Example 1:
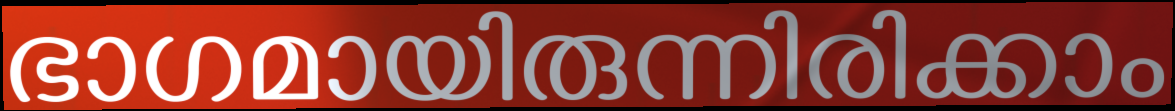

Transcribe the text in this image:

ഭാഗമായിരുന്നിരിക്കാം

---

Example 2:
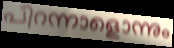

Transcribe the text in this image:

പിറന്നാളൊന്നും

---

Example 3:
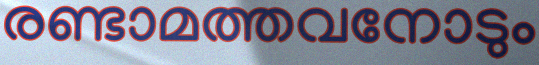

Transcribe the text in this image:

രണ്ടാമത്തവനോടും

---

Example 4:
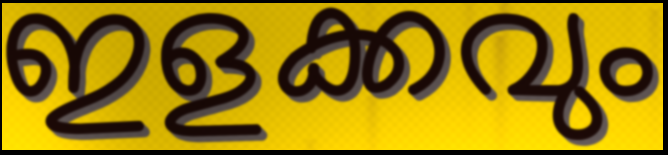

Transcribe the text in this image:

ഇളക്കവും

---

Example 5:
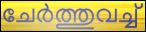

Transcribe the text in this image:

ചേർത്തുവച്ച്